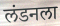
लंडनला